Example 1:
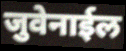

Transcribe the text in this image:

जुवेनाईल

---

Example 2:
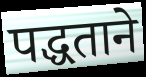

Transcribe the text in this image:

पद्धताने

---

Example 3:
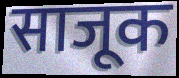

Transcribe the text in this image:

साजूक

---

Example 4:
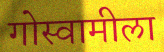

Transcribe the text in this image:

गोस्वामीला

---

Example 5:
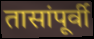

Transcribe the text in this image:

तासांपूर्वी